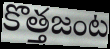
కొత్తజంట